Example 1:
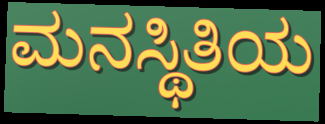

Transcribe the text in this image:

ಮನಸ್ಥಿತಿಯ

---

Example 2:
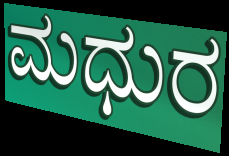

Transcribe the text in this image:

ಮಧುರ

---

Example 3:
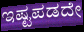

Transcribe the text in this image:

ಇಷ್ಟಪಡದೇ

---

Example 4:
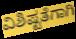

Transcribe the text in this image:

ವಿಶಿಷ್ಟತೆಗಾಗಿ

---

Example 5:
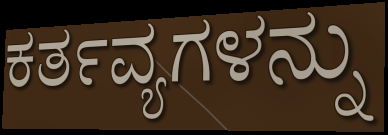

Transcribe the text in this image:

ಕರ್ತವ್ಯಗಳನ್ನು